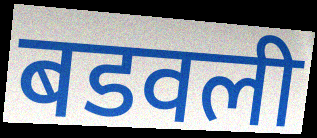
बडवली